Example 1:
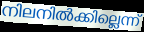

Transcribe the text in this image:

നിലനിൽക്കില്ലെന്ന്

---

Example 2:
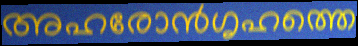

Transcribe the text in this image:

അഹരോൻഗൃഹത്തെ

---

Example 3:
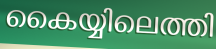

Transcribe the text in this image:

കൈയ്യിലെത്തി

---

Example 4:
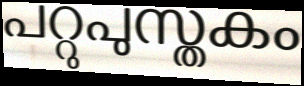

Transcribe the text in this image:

പറ്റുപുസ്തകം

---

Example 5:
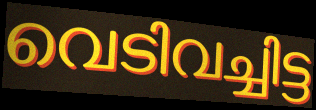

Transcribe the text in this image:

വെടിവച്ചിട്ട